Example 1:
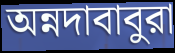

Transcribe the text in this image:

অন্নদাবাবুরা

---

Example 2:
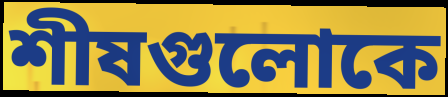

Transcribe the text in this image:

শীষগুলোকে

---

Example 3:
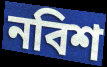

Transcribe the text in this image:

নবিশ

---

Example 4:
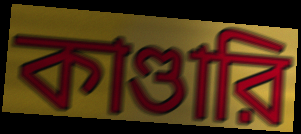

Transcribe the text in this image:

কাণ্ডারি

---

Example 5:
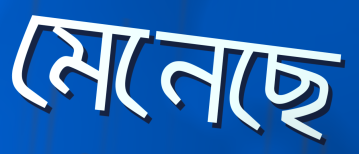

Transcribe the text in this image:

মেনেছে